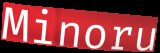
Minoru